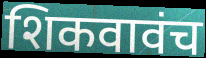
शिकवावंच